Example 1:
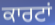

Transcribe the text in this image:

ਕਾਰਟਾਂ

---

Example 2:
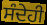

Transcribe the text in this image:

ਸੰਦੇਹੀ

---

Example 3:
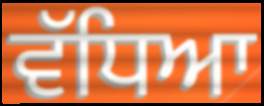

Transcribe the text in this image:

ਵੱਧਿਆ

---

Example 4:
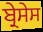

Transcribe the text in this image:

ਬ੍ਰੇਸੇਸ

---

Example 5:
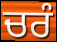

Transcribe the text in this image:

ਚਰੰ